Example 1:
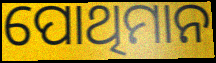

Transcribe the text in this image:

ପୋଥିମାନ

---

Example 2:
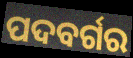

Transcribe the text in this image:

ପଦବର୍ଗର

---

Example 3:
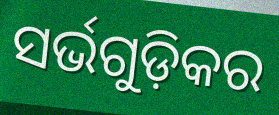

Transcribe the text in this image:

ସର୍ଭଗୁଡ଼ିକର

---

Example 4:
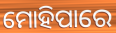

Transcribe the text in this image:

ମୋହିପାରେ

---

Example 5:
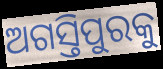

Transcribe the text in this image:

ଅଗସ୍ତିପୁରକୁ